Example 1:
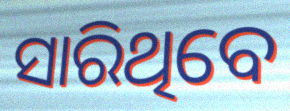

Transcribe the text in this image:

ସାରିଥିବେ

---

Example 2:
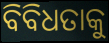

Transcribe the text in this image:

ବିବିଧତାକୁ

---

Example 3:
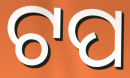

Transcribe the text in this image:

ଟପ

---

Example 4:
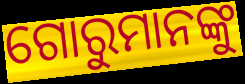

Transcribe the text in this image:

ଗୋରୁମାନଙ୍କୁ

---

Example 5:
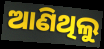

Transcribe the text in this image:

ଆଣିଥିଲୁ